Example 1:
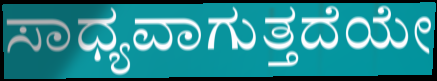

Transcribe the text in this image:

ಸಾಧ್ಯವಾಗುತ್ತದೆಯೇ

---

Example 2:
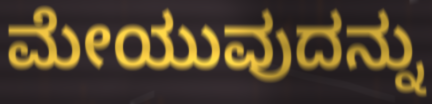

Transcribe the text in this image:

ಮೇಯುವುದನ್ನು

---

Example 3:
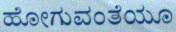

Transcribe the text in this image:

ಹೋಗುವಂತೆಯೂ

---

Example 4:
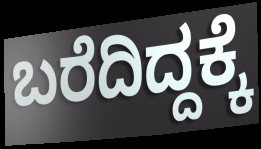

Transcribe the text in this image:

ಬರೆದಿದ್ದಕ್ಕೆ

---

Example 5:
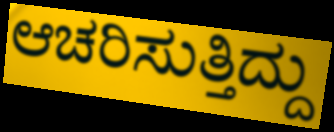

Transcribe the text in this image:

ಆಚರಿಸುತ್ತಿದ್ದು